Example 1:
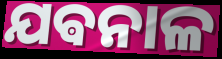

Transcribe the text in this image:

ଯଵନାଳ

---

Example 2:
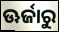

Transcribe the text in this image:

ଊର୍ଜାରୁ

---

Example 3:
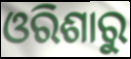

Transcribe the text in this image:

ଓରିଶାରୁ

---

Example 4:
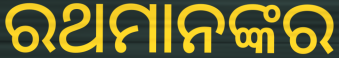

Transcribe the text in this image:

ରଥମାନଙ୍କର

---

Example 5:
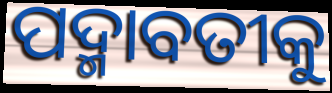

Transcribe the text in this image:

ପଦ୍ମାବତୀକୁ